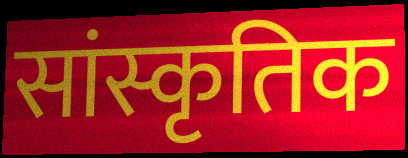
सांस्‍कृतिक